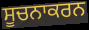
ਸੂਚਨਾਕਰਨ